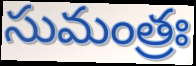
సుమంత్రః